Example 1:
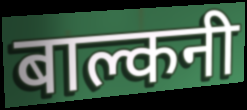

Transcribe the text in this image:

बाल्कनी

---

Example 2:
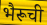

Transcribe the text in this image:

भैरूची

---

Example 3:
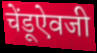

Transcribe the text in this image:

चेंडूऐवजी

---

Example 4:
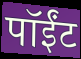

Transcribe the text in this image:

पॉईंट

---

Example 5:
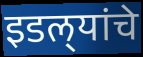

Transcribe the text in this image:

इडल्यांचे